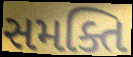
સમક્તિ